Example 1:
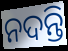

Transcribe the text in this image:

ନଦନ୍ତି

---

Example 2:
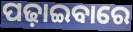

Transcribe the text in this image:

ପଢ଼ାଇବାରେ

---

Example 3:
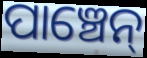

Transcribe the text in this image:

ପାଞ୍ଚେନ୍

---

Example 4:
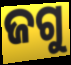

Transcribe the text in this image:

ଜଗୁ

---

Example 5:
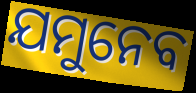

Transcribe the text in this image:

ଯମୁନେବ